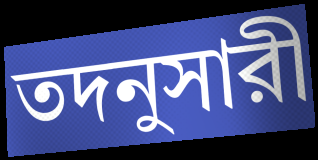
তদনুসারী